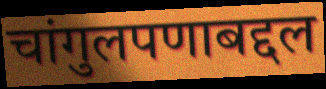
चांगुलपणाबद्दल